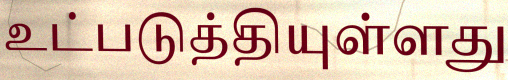
உட்படுத்தியுள்ளது